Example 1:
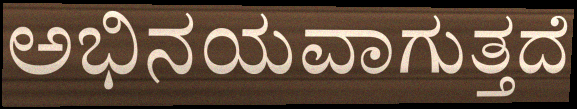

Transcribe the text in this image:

ಅಭಿನಯವಾಗುತ್ತದೆ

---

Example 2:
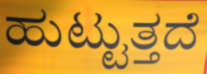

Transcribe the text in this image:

ಹುಟ್ಟುತ್ತದೆ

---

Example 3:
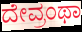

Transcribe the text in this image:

ದೇವ್ರಂಥಾ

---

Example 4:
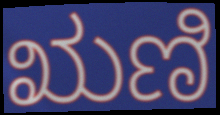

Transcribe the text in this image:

ಋಣಿ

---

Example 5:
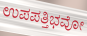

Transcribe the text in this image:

ಉಪಪತ್ತಿಭವೋ